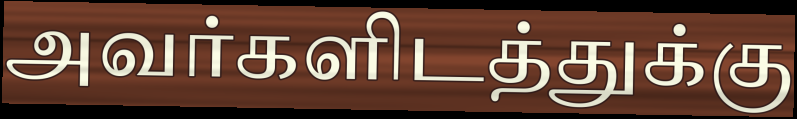
அவர்களிடத்துக்கு